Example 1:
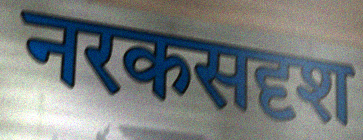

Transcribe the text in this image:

नरकसदृश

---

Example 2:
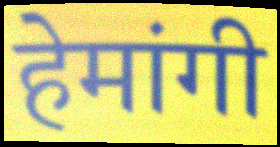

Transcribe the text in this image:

हेमांगी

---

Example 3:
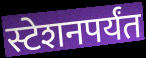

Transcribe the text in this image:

स्टेशनपर्यंत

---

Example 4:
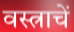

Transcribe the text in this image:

वस्त्राचें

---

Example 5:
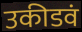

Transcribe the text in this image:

उकीडवं